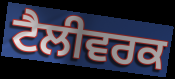
ਟੈਲੀਵਰਕ